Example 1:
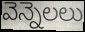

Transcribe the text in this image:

వెన్నెలలు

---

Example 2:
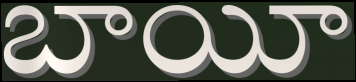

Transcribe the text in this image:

బాయీ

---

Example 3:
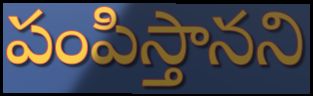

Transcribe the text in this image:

పంపిస్తానని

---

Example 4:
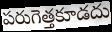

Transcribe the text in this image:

పరుగెత్తకూడదు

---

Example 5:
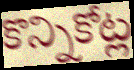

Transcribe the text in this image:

కొన్నికోట్ల